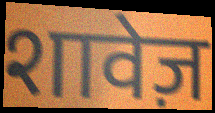
शावेज़